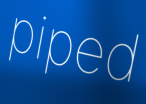
piped